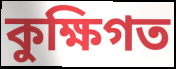
কুক্ষিগত